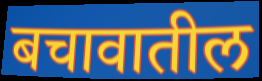
बचावातील